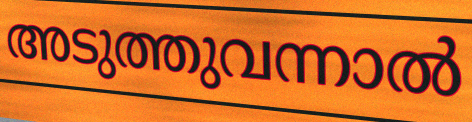
അടുത്തുവന്നാൽ